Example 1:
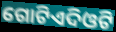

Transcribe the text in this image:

ଗୋଟିଏଦିଓଟି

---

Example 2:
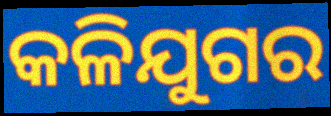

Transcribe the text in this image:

କଳିଯୁଗର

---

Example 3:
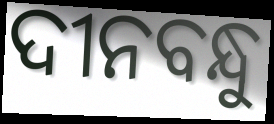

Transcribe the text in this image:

ଦୀନବନ୍ଧୁ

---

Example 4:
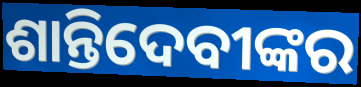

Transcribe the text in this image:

ଶାନ୍ତିଦେବୀଙ୍କର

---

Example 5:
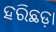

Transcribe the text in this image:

ହରିଛଡ଼ା